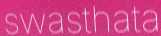
swasthata